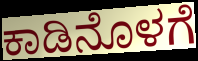
ಕಾಡಿನೊಳಗೆ